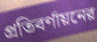
প্রতিবর্ণায়নের